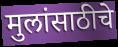
मुलांसाठीचे